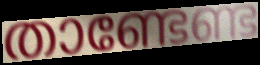
താണ്ടേണ്ട